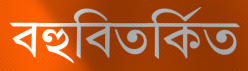
বহুবিতর্কিত